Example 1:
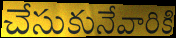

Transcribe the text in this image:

చేసుకునేవారికి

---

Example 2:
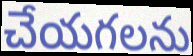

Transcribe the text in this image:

చేయగలను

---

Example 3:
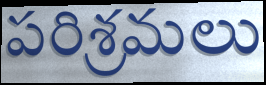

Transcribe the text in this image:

పరిశ్రమలు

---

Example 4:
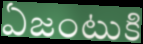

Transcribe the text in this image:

ఏజంటుకి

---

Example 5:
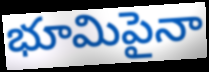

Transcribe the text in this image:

భూమిపైనా